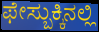
ಫೇಸ್ಬುಕ್ಕಿನಲ್ಲಿ